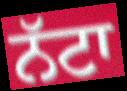
ਨੱਟਾ